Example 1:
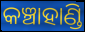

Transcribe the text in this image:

କଞ୍ଚାହାଣ୍ଡି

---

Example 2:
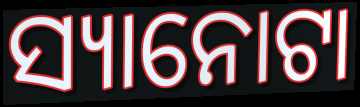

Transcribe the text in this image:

ସ୍ୟାନୋଟା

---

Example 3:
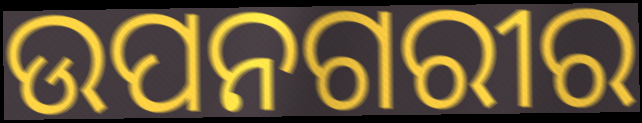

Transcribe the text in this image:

ଉପନଗରୀର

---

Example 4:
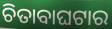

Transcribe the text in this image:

ଚିତାବାଘଟାର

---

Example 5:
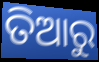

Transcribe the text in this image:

ତିଆରୁ